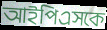
আইপিএসকে